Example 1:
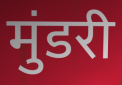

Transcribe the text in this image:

मुंडरी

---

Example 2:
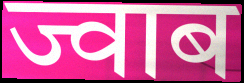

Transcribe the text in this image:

ज्वाब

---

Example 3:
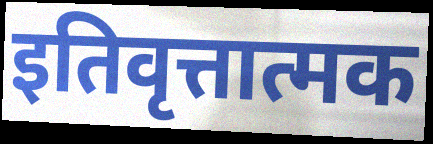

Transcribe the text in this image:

इतिवृत्तात्मक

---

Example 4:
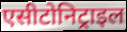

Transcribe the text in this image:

एसीटोनिट्राइल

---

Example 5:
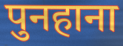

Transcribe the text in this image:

पुनहाना